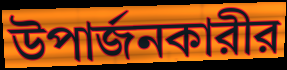
উপার্জনকারীর